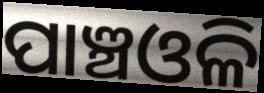
ପାଞ୍ଚଓଳି